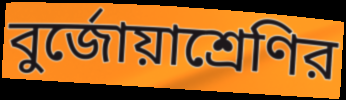
বুর্জোয়াশ্রেণির